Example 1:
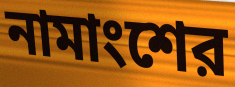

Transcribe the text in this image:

নামাংশের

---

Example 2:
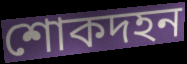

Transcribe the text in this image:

শোকদহন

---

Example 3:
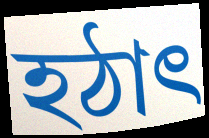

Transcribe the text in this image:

হঠাৎ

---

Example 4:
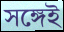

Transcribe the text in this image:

সঙ্গেই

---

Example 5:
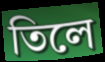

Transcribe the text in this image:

তিলে